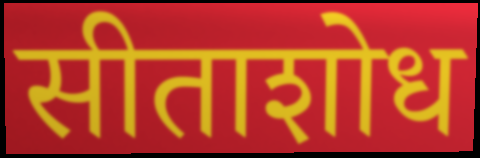
सीताशोध